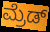
ಮ್ರೆಡ್